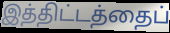
இத்திட்டத்தைப்